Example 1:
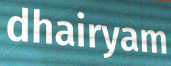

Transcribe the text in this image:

dhairyam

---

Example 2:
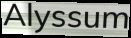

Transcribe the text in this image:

Alyssum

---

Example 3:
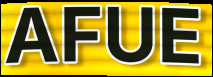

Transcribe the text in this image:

AFUE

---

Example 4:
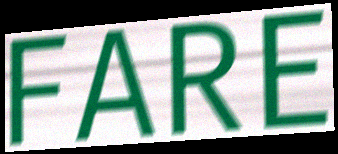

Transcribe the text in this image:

FARE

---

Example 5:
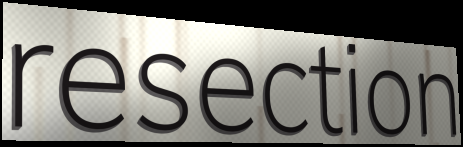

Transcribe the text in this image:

resection